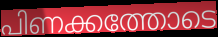
പിണക്കത്തോടെ